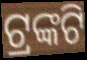
ଟ୍ରଙ୍କଟି